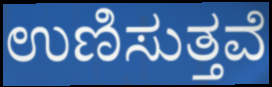
ಉಣಿಸುತ್ತವೆ